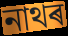
নাথৰ